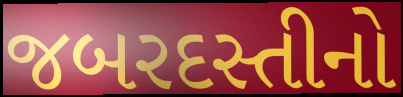
જબરદસ્તીનો